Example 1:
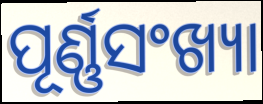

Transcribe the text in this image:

ପୂର୍ଣ୍ଣସଂଖ୍ୟା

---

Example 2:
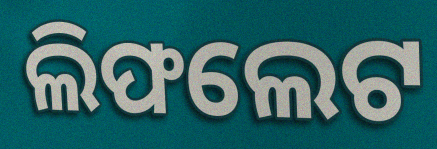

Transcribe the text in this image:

ଲିଫଲେଟ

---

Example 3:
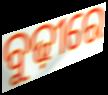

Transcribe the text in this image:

ବୁଢ଼ୀରେ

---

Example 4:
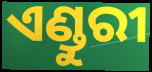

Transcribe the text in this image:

ଏଣ୍ଡୁରୀ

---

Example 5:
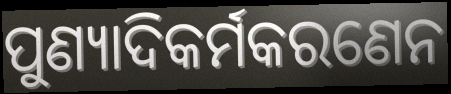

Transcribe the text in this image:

ପୁଣ୍ଯାଦିକର୍ମକରଣେନ